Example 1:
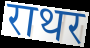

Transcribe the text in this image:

राथर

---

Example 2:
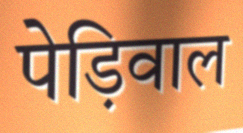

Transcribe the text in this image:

पेड़िवाल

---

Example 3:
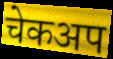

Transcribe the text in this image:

चेकअप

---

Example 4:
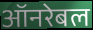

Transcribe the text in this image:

ऑनरेबल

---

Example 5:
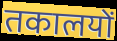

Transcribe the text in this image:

तकालयों